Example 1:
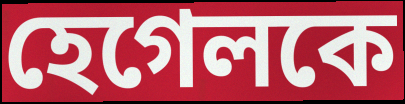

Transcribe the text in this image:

হেগেলকে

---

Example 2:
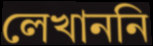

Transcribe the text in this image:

লেখাননি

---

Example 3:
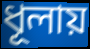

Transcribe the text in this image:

ধূলায়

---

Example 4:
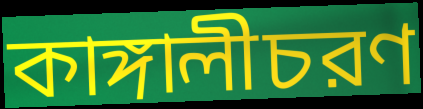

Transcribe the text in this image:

কাঙ্গালীচরণ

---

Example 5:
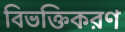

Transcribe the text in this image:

বিভক্তিকরণ